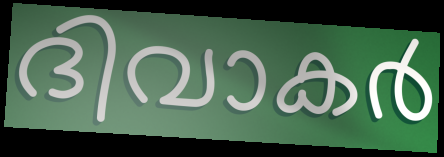
ദിവാകർ